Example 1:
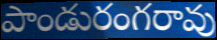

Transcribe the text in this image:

పాండురంగరావు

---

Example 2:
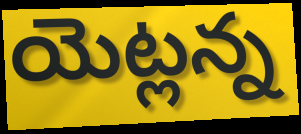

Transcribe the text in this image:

యెట్లన్న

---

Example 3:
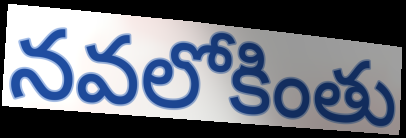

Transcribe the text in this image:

నవలోకింతు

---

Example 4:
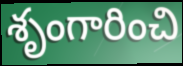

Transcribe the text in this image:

శృంగారించి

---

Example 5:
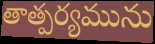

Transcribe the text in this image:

తాత్పర్యమును